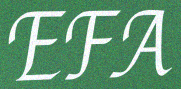
EFA